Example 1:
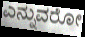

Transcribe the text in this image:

ಎನ್ನುವರೋ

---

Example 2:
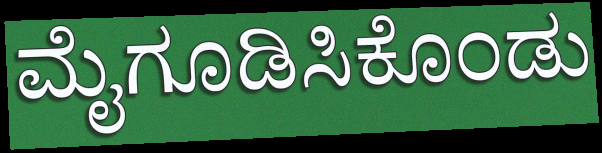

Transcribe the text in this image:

ಮೈಗೂಡಿಸಿಕೊಂಡು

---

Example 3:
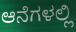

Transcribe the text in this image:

ಆನೆಗಳಲ್ಲಿ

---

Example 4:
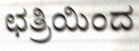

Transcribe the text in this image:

ಛತ್ರಿಯಿಂದ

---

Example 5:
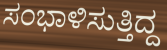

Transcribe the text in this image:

ಸಂಭಾಳಿಸುತ್ತಿದ್ದ